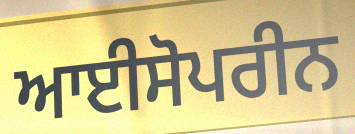
ਆਈਸੋਪਰੀਨ